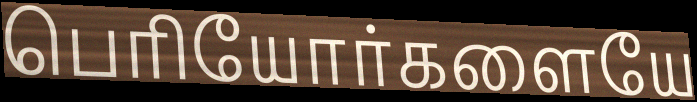
பெரியோர்களையே